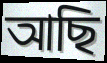
আছি